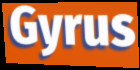
Gyrus